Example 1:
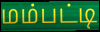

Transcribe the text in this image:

மம்பட்டி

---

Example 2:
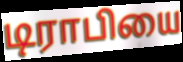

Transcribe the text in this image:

டிராபியை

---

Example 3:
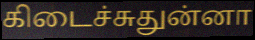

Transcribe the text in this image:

கிடைச்சுதுன்னா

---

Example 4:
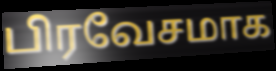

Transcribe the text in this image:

பிரவேசமாக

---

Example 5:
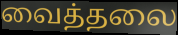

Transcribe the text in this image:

வைத்தலை